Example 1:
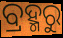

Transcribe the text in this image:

ବ୍ରହ୍ମରୁ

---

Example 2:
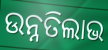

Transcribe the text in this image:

ଉନ୍ନତିଲାଭ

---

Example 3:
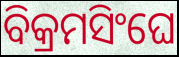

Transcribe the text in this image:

ବିକ୍ରମସିଂଘେ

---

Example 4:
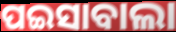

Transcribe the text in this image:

ପଇସାବାଲା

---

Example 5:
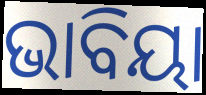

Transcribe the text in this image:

ଭାବିୟା